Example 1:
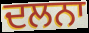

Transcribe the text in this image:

ਦਲਨਾ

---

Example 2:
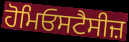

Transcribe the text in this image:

ਹੋਮਿਓਸਟੈਸੀਜ਼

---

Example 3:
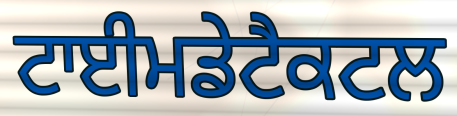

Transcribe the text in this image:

ਟਾਈਮਡੇਟੈਕਟਲ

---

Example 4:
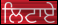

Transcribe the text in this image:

ਲਿਟਾਏ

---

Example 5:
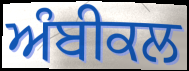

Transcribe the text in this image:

ਅੰਬੀਕਲ